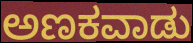
ಅಣಕವಾಡು